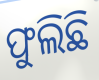
ଫୁଲିଛି